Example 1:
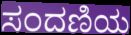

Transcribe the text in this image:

ಸಂದಣಿಯ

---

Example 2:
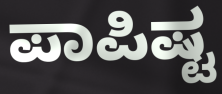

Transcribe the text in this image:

ಪಾಪಿಷ್ಟ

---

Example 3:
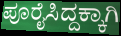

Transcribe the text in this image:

ಪೂರೈಸಿದ್ದಕ್ಕಾಗಿ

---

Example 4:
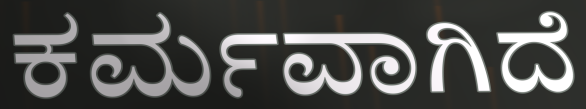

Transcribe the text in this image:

ಕರ್ಮವಾಗಿದೆ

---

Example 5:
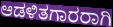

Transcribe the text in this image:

ಆಡಳಿತಗಾರರಾಗಿ